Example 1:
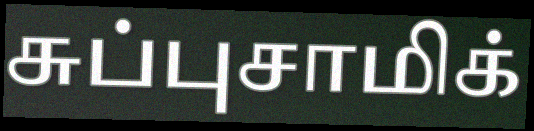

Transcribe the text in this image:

சுப்புசாமிக்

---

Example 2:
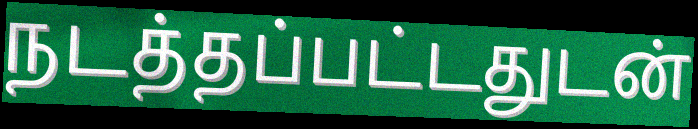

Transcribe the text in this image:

நடத்தப்பட்டதுடன்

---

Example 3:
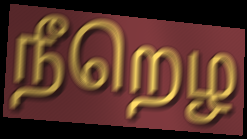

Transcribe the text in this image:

நீறெழ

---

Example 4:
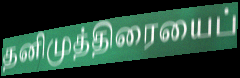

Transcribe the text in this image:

தனிமுத்திரையைப்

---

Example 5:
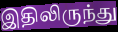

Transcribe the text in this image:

இதிலிருந்து